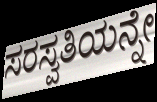
ಸರಸ್ವತಿಯನ್ನೇ